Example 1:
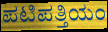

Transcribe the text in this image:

ಪಟಿಪತ್ತಿಯಂ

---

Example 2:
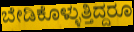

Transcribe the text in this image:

ಬೇಡಿಕೊಳ್ಳುತ್ತಿದ್ದರೂ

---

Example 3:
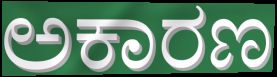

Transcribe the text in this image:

ಅಕಾರಣ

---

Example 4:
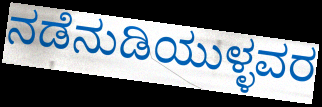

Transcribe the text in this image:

ನಡೆನುಡಿಯುಳ್ಳವರ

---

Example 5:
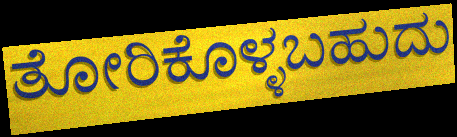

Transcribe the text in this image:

ತೋರಿಕೊಳ್ಳಬಹುದು